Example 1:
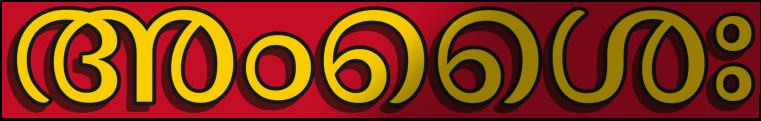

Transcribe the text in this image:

അംശൈഃ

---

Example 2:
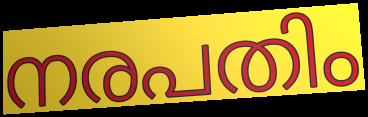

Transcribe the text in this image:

നരപതിം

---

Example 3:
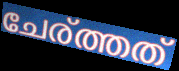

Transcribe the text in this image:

ചേര്ത്തത്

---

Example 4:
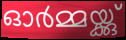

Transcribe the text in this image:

ഓർമ്മയ്ക്കു്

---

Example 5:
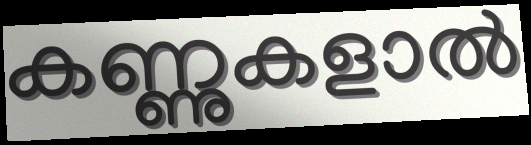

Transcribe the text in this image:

കണ്ണുകളാൽ